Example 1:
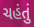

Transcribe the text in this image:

ચહંતું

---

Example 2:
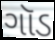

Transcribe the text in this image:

ગૉડ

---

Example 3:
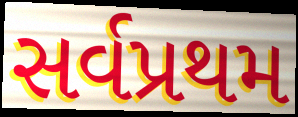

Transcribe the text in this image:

સર્વપ્રથમ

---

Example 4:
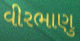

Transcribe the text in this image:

વીરભાણુ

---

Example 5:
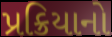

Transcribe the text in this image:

પ્રક્રિયાનો